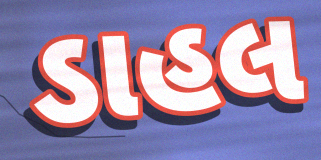
ડાહલ